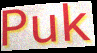
Puk